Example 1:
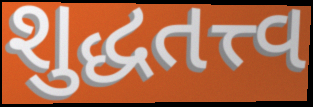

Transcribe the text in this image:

શુદ્ધતત્ત્વ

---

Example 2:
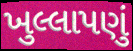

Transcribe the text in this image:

ખુલ્લાપણું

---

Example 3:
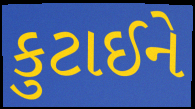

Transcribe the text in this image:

કુટાઈને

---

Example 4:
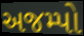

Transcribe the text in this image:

અજમ્પો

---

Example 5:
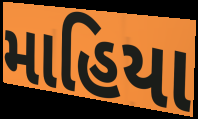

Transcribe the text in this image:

માહિયા